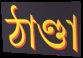
ঠাণ্ডা